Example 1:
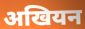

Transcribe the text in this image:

अखियन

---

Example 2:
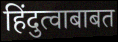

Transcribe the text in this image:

हिंदुत्वाबाबत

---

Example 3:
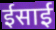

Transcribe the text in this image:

ईसाई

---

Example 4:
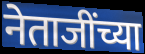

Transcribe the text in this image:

नेताजींच्या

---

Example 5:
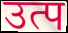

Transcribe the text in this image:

उत्प